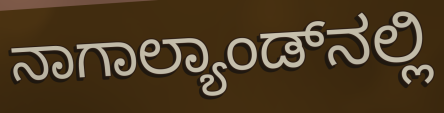
ನಾಗಾಲ್ಯಾಂಡ್‌ನಲ್ಲಿ